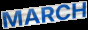
MARCH